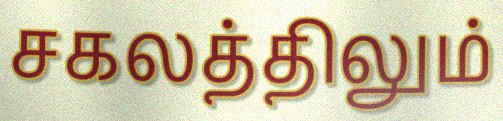
சகலத்திலும்